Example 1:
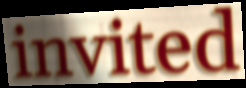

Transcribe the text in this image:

invited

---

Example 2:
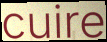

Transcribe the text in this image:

cuire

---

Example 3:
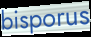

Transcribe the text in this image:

bisporus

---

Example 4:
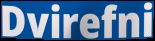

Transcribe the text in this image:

Dvirefni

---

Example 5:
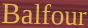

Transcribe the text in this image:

Balfour